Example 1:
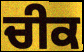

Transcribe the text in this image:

ਚੀਕ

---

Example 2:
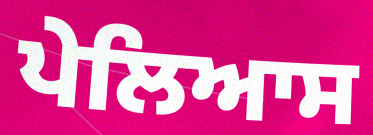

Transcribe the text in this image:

ਪੇਲਿਆਸ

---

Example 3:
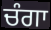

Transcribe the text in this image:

ਚੰਗਾ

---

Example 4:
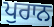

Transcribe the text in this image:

ਪੁਰਾਨ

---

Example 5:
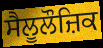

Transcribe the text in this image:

ਸੈਲੂਲੌਜ਼ਿਕ